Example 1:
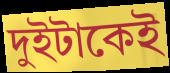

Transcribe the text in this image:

দুইটাকেই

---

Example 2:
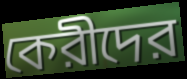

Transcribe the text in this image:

কেরীদের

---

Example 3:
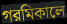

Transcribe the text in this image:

গরমিকালে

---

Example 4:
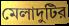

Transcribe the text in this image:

মেলাদুটির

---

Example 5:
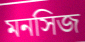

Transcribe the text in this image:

মনসিজ